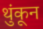
थुंकून